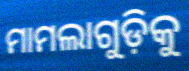
ମାମଲାଗୁଡ଼ିକୁ